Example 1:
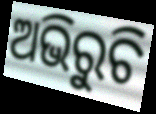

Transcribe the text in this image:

ଅଭିରୁଚି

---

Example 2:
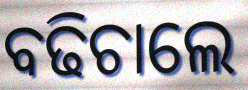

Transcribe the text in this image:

ବଢିଚାଲେ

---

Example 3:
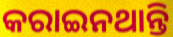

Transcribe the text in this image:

କରାଇନଥାନ୍ତି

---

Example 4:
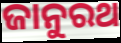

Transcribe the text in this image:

ଜାନୁରଥ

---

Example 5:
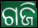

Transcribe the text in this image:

ଗଜି